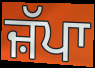
ਜ਼ੱਪਾ